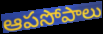
ఆపసోపాలు